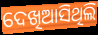
ଦେଖିଆସିଥିଲି